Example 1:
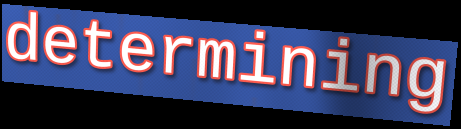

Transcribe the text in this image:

determining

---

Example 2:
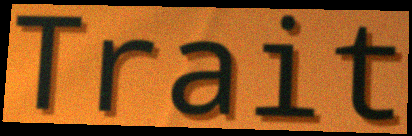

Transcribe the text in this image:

Trait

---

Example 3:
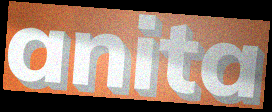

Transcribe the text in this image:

anita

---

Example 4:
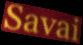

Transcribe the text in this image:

Savai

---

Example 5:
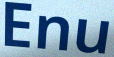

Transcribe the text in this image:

Enu